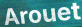
Arouet